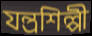
যন্ত্রশিল্পী